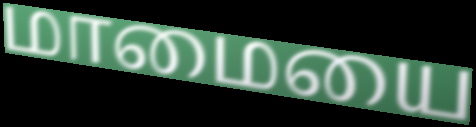
மாமையை